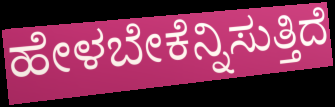
ಹೇಳಬೇಕೆನ್ನಿಸುತ್ತಿದೆ